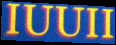
IUUII